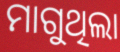
ମାଗୁଥିଲା